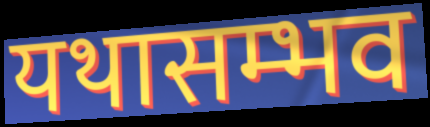
यथासम्भव